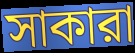
সাকারা